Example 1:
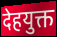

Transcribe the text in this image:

देहयुक्त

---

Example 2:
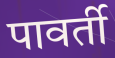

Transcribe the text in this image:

पावर्ती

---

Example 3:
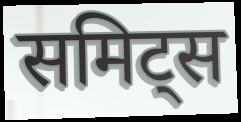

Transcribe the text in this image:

समिट्स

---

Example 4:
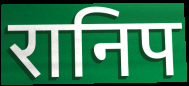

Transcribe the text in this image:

रानिप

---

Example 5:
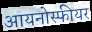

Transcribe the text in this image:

आयनोस्फीयर